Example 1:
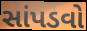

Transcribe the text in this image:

સાંપડવો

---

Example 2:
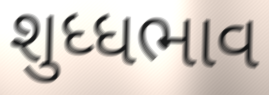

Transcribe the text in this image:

શુધ્ધભાવ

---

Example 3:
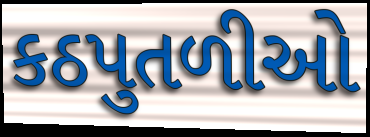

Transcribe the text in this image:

કઠપુતળીઓ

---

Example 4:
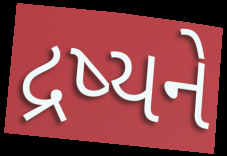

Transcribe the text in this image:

દ્રષ્યને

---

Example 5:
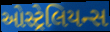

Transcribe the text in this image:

ઓસ્ટ્રેલિયન્સ